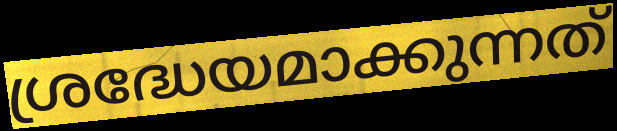
ശ്രദ്ധേയമാക്കുന്നത്